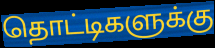
தொட்டிகளுக்கு